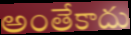
అంతేకాదు